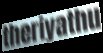
theriyathu